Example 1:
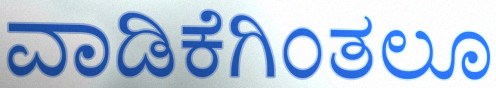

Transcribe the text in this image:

ವಾಡಿಕೆಗಿಂತಲೂ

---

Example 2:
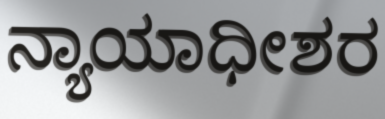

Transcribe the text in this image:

ನ್ಯಾಯಾಧೀಶರ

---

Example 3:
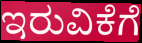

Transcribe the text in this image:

ಇರುವಿಕೆಗೆ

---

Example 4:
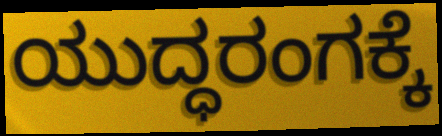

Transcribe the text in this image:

ಯುದ್ಧರಂಗಕ್ಕೆ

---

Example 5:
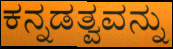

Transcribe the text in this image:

ಕನ್ನಡತ್ವವನ್ನು